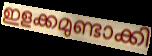
ഇളക്കമുണ്ടാക്കി